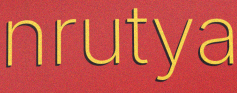
nrutya